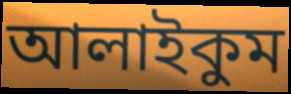
আলাইকুম